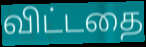
விட்டதை